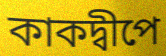
কাকদ্বীপে